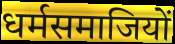
धर्मसमाजियों